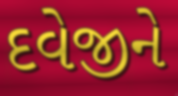
દવેજીને